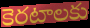
కెరటాలకు